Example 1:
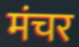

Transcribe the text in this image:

मंचर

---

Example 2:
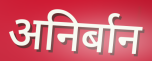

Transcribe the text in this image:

अनिर्बान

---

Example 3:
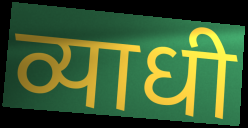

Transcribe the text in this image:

व्याधी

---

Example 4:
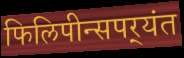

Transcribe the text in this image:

फिलिपीन्सपर्यंत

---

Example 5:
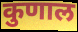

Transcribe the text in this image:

कुणाल